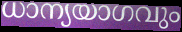
ധാന്യയാഗവും